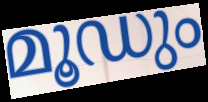
മൂഡും